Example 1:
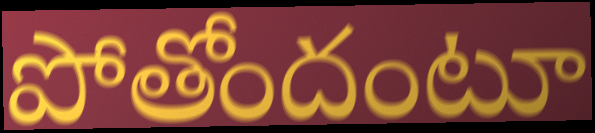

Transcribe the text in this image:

పోతోందంటూ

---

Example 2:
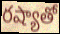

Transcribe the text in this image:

రష్యాతో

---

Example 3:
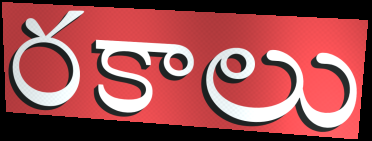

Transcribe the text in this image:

రకాలు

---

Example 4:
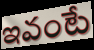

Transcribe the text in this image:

ఇవంటే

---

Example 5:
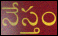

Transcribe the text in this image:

నేస్తం